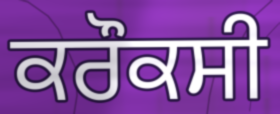
ਕਰੌਕਸੀ